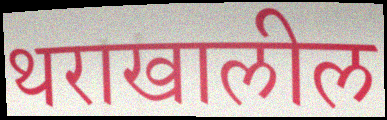
थराखालील